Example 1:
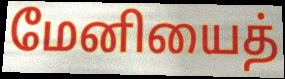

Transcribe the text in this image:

மேனியைத்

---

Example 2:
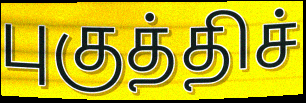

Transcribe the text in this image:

புகுத்திச்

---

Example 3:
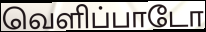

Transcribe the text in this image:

வெளிப்பாடோ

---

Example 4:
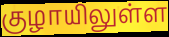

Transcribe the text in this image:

குழாயிலுள்ள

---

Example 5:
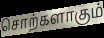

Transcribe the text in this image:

சொற்களாகும்